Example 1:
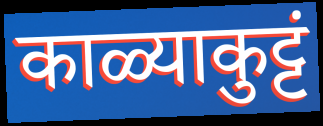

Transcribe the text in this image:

काळ्याकुट्टं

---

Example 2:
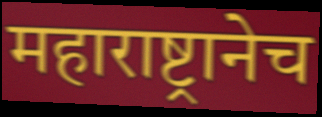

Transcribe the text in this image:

महाराष्ट्रानेच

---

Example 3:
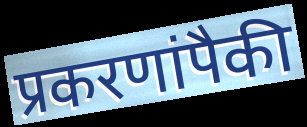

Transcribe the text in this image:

प्रकरणांपैकी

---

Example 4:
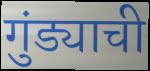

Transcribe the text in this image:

गुंड्याची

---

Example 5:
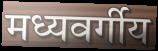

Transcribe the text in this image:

मध्यवर्गीय